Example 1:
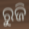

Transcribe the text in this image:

ରୁଜି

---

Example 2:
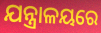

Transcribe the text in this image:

ଯନ୍ତ୍ରାଳୟରେ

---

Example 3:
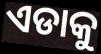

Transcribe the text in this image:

ଏଡାକୁ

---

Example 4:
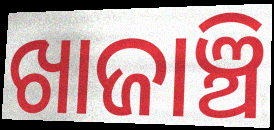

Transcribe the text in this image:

ଖାଜାଞ୍ଚି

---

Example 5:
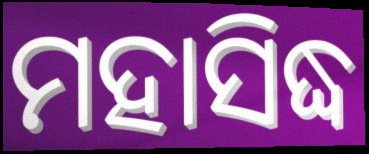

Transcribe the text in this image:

ମହାସିଦ୍ଧ